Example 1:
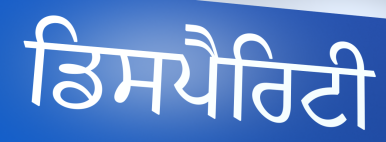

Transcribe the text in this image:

ਡਿਸਪੈਰਿਟੀ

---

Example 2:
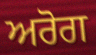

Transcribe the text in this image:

ਅਰੋਗ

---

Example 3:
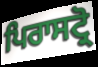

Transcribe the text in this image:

ਪਿਰਾਸਟ੍ਰੋ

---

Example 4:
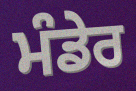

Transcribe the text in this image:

ਮੰਡੇਰ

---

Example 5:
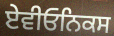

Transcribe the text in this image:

ਏਵੀਓਨਿਕਸ